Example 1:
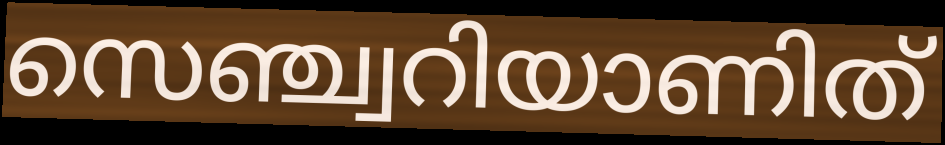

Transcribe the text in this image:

സെഞ്ച്വറിയാണിത്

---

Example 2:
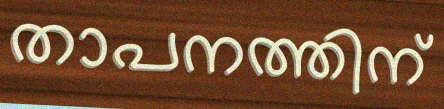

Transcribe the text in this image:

താപനത്തിന്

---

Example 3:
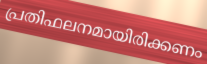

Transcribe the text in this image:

പ്രതിഫലനമായിരിക്കണം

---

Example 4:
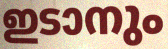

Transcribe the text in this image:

ഇടാനും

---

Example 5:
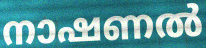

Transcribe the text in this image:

നാഷണൽ